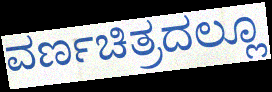
ವರ್ಣಚಿತ್ರದಲ್ಲೂ